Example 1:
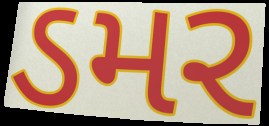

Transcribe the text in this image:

ડમર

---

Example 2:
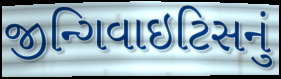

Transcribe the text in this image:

જીન્ગિવાઇટિસનું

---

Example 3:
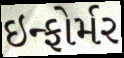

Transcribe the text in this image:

ઇન્ફોર્મર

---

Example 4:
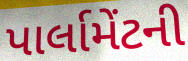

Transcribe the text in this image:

પાર્લામેંટની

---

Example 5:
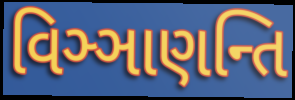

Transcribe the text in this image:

વિઞ્ઞાણન્તિ